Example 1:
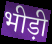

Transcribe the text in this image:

भीड़ी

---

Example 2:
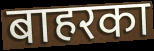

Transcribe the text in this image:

बाहरका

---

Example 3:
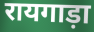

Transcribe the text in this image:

रायगाड़ा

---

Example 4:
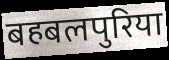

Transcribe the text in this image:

बहबलपुरिया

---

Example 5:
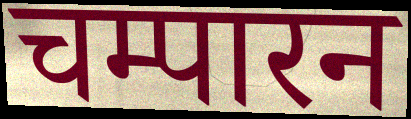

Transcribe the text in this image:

चम्पारन